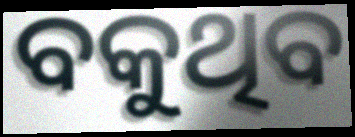
ବକୁଥିବ